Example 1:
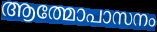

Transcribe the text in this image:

ആത്മോപാസനം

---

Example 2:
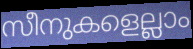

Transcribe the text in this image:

സീനുകളെല്ലാം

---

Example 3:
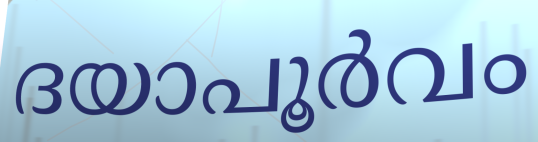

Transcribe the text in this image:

ദയാപൂർവം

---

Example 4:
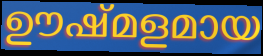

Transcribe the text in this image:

ഊഷ്‌മളമായ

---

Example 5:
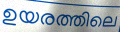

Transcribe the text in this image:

ഉയരത്തിലെ